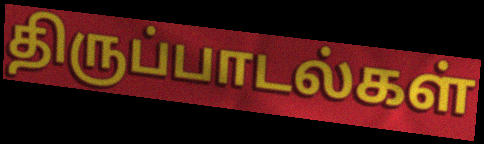
திருப்பாடல்கள்